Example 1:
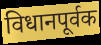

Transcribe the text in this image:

विधानपूर्वक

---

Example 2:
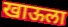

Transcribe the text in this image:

खाऊला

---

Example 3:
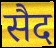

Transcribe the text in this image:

सैद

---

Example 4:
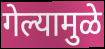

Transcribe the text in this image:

गेल्यामुळे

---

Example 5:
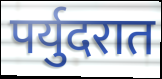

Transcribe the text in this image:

पर्युदरात